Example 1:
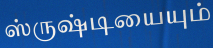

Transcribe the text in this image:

ஸ்ருஷ்டியையும்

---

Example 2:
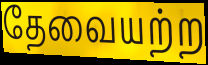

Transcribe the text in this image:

தேவையற்ற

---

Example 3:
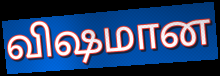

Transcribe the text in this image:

விஷமான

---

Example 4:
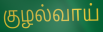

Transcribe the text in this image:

குழல்வாய்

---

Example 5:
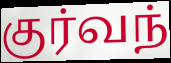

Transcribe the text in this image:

குர்வந்